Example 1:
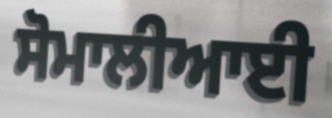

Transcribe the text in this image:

ਸੋਮਾਲੀਆਈ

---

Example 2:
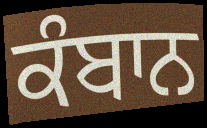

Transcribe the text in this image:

ਕੰਬਾਨ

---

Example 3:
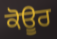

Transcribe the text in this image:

ਕੋਊਰ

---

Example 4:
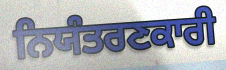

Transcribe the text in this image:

ਨਿਯੰਤਰਣਕਾਰੀ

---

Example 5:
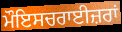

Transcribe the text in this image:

ਮੌਇਸਚਰਾਈਜ਼ਰਾਂ